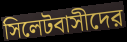
সিলেটবাসীদের